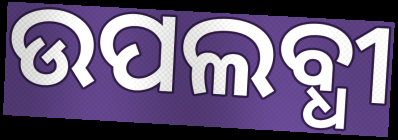
ଉପଲବ୍ଧୀ